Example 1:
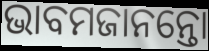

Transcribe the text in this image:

ଭାବମଜାନନ୍ତୋ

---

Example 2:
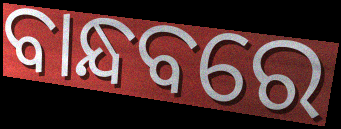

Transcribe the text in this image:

ବାନ୍ଧବରେ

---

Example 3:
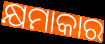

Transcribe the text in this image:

କ୍ଷମାକାର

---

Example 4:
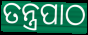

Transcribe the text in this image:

ତନ୍ତ୍ରପାଠ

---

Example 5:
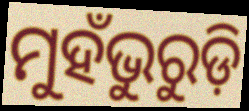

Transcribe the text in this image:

ମୁହଁଭୁରୁଡ଼ି